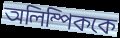
অলিম্পিককে